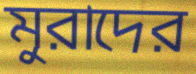
মুরাদের